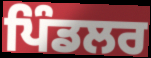
ਪਿੰਡਲਰ